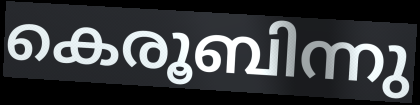
കെരൂബിന്നു